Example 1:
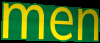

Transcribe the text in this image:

men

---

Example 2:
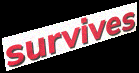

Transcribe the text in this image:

survives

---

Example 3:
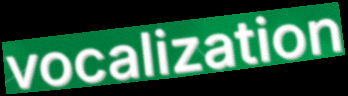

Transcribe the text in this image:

vocalization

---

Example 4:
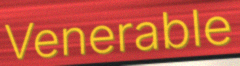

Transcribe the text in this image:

Venerable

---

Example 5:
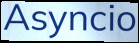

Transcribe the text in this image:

Asyncio